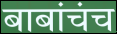
बाबांचंच